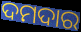
ଦମଦାର